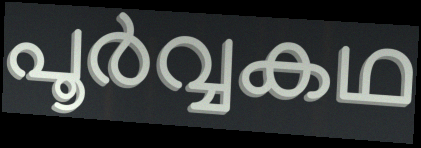
പൂർവ്വകഥ